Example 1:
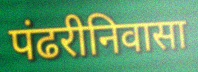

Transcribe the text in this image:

पंढरीनिवासा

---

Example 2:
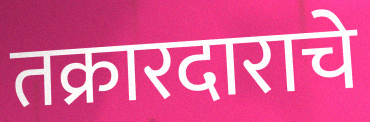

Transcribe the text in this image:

तक्रारदाराचे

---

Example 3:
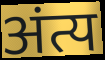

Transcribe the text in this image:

अंत्य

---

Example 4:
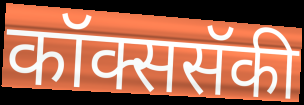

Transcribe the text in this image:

कॉक्ससॅकी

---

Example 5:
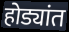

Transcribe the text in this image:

होड्यांत